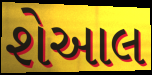
શેઆલ